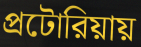
প্রটোরিয়ায়